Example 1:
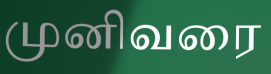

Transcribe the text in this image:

முனிவரை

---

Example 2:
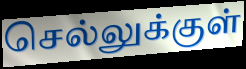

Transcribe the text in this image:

செல்லுக்குள்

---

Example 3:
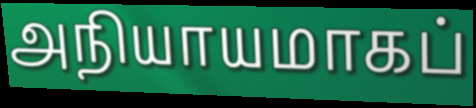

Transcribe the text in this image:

அநியாயமாகப்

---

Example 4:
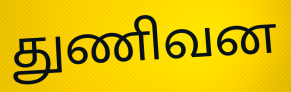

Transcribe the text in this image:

துணிவன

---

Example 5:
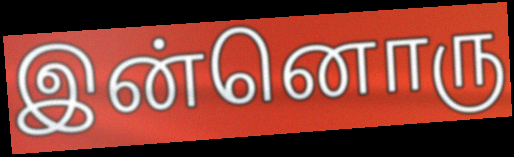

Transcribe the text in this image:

இன்னொரு